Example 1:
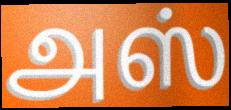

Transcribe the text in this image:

அஸ்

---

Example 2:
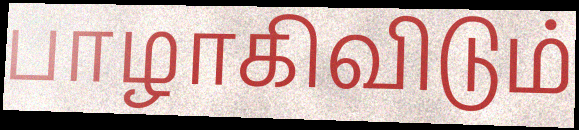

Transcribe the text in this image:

பாழாகிவிடும்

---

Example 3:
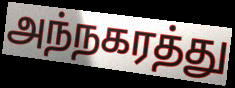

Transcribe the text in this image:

அந்நகரத்து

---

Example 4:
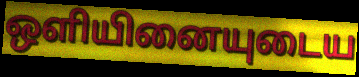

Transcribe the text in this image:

ஒளியினையுடைய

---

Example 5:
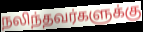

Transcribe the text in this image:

நலிந்தவர்களுக்கு